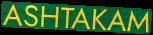
ASHTAKAM